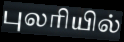
புலரியில்